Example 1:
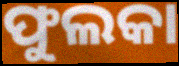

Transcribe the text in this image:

ଫୁଲକା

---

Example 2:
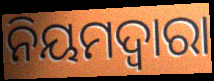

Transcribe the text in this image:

ନିୟମଦ୍ଵାରା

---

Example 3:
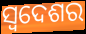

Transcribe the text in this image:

ସ୍ଵଦେଶର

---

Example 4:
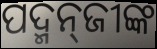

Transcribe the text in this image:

ପଦ୍ମନ୍‌ଜୀଙ୍କ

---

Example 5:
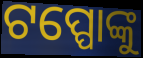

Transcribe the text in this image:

ଟପ୍ପୋଙ୍କୁ